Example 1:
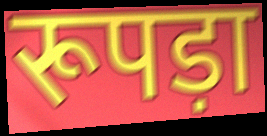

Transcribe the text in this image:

रूपड़ा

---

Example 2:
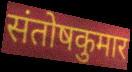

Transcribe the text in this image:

संतोषकुमार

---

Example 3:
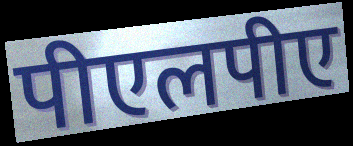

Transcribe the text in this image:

पीएलपीए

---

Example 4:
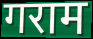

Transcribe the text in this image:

गराम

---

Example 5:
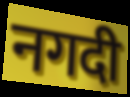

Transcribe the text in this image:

नगदी